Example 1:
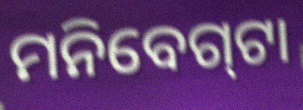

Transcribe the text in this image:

ମନିବେଗ୍‍ଟା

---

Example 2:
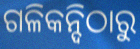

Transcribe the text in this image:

ଗଳିକନ୍ଦିଠାରୁ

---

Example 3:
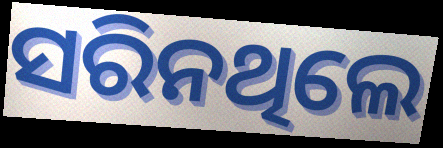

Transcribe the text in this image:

ସରିନଥିଲେ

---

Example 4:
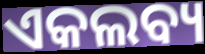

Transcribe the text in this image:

ଏକଲବ୍ୟ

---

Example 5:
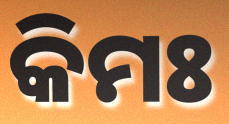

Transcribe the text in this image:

କିମଃ